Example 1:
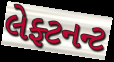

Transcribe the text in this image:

લેફ્ટનન્ટ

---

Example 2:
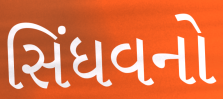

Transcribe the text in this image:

સિંધવનો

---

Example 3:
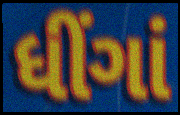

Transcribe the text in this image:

ધીંગાં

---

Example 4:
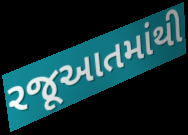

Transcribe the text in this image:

રજૂઆતમાંથી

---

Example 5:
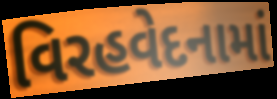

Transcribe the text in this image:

વિરહવેદનામાં